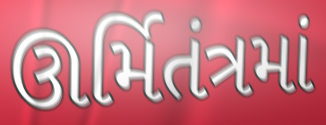
ઊર્મિતંત્રમાં